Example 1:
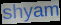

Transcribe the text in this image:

shyam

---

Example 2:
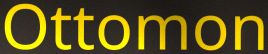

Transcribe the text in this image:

Ottomon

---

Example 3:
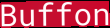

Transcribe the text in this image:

Buffon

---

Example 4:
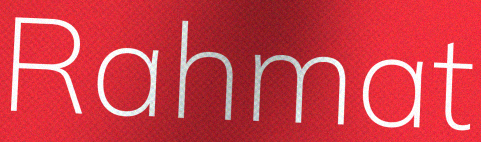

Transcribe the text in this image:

Rahmat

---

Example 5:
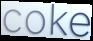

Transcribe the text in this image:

coke